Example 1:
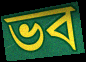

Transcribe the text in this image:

ভব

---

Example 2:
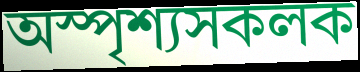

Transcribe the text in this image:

অস্পৃশ্যসকলক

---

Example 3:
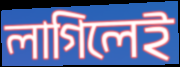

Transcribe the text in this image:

লাগিলেই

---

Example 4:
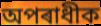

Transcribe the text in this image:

অপৰাধীক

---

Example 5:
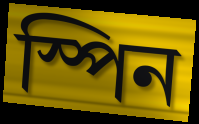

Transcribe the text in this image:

স্পিন